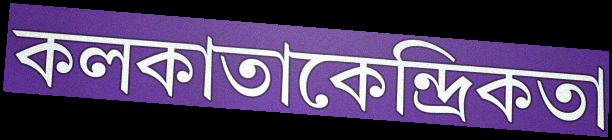
কলকাতাকেন্দ্রিকতা